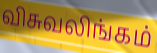
விசுவலிங்கம்